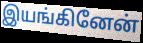
இயங்கினேன்